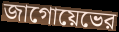
জাগোয়েভের